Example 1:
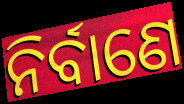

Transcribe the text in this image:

ନିର୍ବାଣେ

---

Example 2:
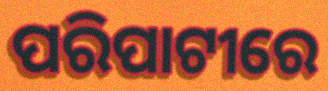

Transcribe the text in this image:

ପରିପାଟୀରେ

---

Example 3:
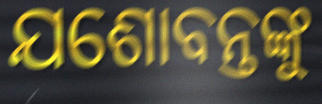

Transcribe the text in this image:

ଯଶୋବନ୍ତଙ୍କୁ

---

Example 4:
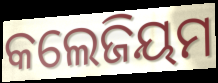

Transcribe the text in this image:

କଲେଜିୟମ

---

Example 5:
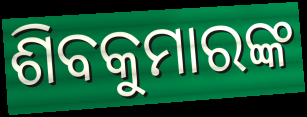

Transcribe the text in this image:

ଶିବକୁମାରଙ୍କ